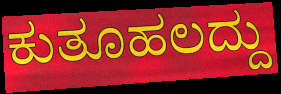
ಕುತೂಹಲದ್ದು